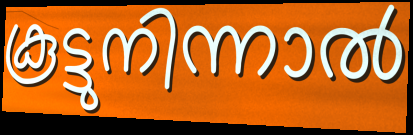
കൂട്ടുനിന്നാൽ